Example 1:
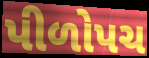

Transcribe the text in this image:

પીળોપચ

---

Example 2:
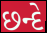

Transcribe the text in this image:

છન્દે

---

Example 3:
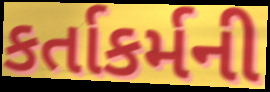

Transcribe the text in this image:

કર્તાકર્મની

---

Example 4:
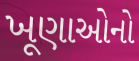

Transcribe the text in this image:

ખૂણાઓનો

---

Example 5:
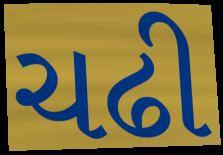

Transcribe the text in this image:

ચઢી